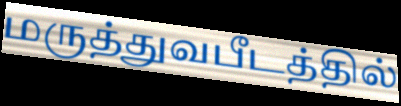
மருத்துவபீடத்தில்